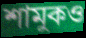
শামুকও